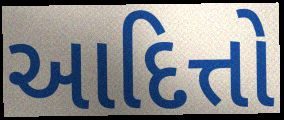
આદિત્તો